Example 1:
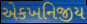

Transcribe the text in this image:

એકખનિજીય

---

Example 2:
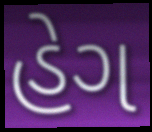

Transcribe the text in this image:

હેગ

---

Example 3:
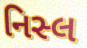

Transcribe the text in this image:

નિસ્લ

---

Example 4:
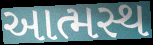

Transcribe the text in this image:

આત્મસ્થ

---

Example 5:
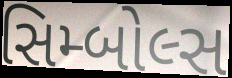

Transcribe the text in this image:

સિમ્બોલ્સ